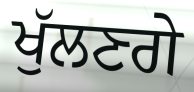
ਖੁੱਲਣਗੇ